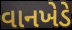
વાનખેડે